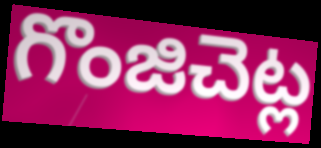
గొంజిచెట్ల